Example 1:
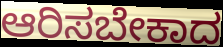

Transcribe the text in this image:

ಆರಿಸಬೇಕಾದ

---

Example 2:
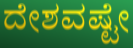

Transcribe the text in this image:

ದೇಶವಷ್ಟೇ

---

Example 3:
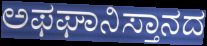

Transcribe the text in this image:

ಅಫಘಾನಿಸ್ತಾನದ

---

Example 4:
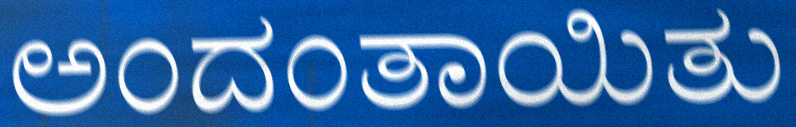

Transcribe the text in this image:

ಅಂದಂತಾಯಿತು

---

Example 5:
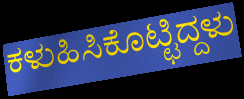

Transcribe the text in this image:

ಕಳುಹಿಸಿಕೊಟ್ಟಿದ್ದಳು